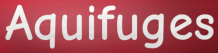
Aquifuges